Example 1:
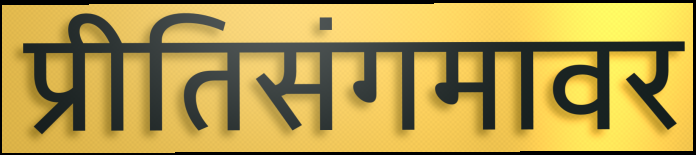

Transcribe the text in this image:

प्रीतिसंगमावर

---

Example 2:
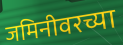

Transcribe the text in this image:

जमिनीवरच्या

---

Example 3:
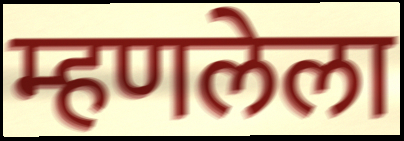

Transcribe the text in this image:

म्हणलेला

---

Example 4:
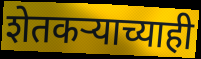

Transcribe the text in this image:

शेतकऱ्याच्याही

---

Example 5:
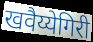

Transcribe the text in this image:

खवैय्येगिरी